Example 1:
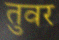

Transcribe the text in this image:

तुवर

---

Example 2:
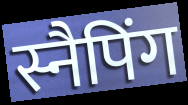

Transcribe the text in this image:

स्नैपिंग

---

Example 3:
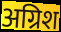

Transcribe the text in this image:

अग्रिश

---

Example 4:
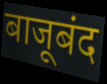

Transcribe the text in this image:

बाजूबंद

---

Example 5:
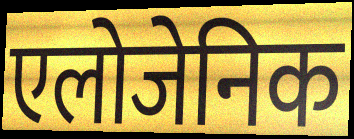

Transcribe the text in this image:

एलोजेनिक